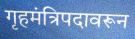
गृहमंत्रिपदावरून